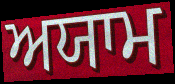
ਅਯਾਮ